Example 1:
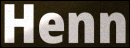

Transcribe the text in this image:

Henn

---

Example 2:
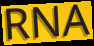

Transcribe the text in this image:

RNA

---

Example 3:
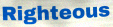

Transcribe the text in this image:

Righteous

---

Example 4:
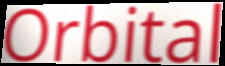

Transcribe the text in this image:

Orbital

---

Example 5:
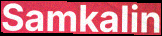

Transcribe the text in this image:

Samkalin